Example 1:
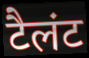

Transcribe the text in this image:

टैलंट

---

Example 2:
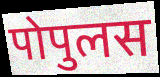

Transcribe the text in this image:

पोपुलस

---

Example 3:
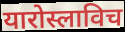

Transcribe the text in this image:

यारोस्लाविच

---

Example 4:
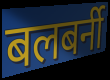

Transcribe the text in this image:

बलबर्नी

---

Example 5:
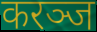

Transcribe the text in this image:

करञ्ज